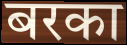
बरका